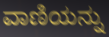
ವಾಣಿಯನ್ನು